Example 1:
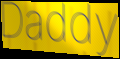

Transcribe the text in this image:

Daddy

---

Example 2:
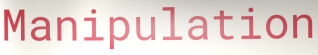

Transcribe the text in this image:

Manipulation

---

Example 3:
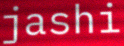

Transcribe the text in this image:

jashi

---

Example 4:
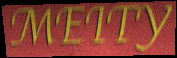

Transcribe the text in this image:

MEITY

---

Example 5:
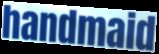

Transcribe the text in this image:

handmaid